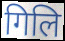
गिलि